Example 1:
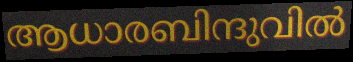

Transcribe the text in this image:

ആധാരബിന്ദുവിൽ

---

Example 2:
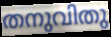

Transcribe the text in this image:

തനുവിതു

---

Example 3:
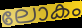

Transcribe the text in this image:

ലോകം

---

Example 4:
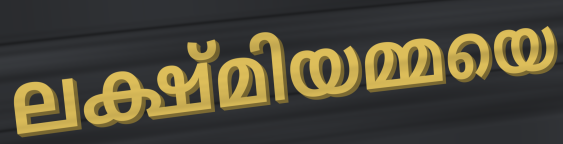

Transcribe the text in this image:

ലക്ഷ്മിയമ്മയെ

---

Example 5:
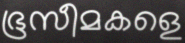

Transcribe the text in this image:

ഭൂസീമകളെ